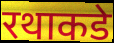
रथाकडे